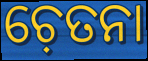
ଚ଼େତନା